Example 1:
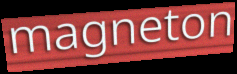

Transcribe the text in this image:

magneton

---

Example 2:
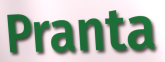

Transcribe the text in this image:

Pranta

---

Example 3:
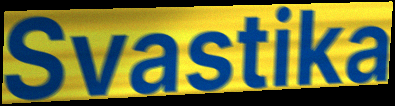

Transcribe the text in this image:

Svastika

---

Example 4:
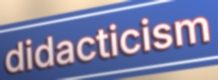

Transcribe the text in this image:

didacticism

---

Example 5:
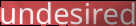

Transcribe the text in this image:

undesired